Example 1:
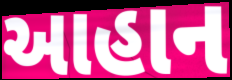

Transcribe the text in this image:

આહાન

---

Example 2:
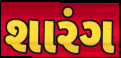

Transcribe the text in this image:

શારંગ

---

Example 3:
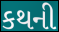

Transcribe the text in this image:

કથની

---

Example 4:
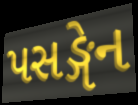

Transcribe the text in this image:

પસઙ્ગેન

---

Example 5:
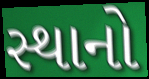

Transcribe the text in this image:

સ્થાનો